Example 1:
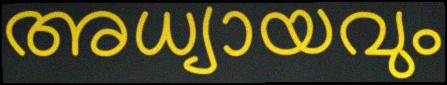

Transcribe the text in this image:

അധ്യായവും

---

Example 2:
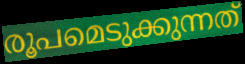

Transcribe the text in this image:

രൂപമെടുക്കുന്നത്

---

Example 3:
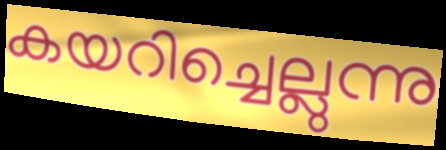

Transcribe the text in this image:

കയറിച്ചെല്ലുന്നു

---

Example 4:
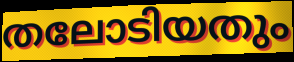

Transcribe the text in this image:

തലോടിയതും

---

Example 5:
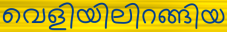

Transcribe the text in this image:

വെളിയിലിറങ്ങിയ